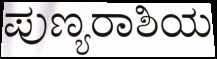
ಪುಣ್ಯರಾಶಿಯ